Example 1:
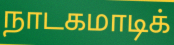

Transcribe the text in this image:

நாடகமாடிக்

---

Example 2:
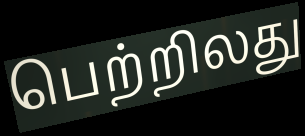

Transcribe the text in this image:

பெற்றிலது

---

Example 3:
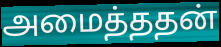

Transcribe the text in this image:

அமைத்ததன்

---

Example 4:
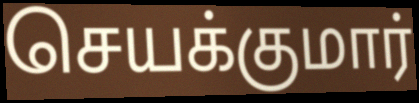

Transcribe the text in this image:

செயக்குமார்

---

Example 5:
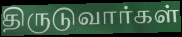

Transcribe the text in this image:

திருடுவார்கள்